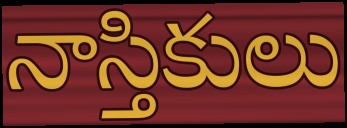
నాస్తికులు